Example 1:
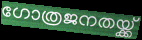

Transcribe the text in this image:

ഗോത്രജനതയ്ക്ക്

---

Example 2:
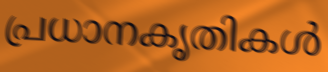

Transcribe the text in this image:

പ്രധാനകൃതികൾ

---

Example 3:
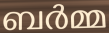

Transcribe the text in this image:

ബർമ്മ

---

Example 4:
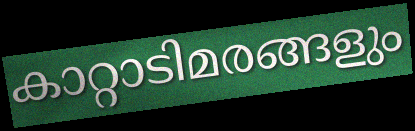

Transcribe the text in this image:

കാറ്റാടിമരങ്ങളും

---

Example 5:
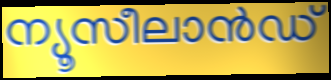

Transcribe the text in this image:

ന്യൂസീലാൻഡ്